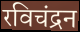
रविचंद्रन